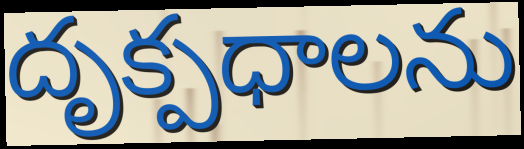
దృక్పధాలను